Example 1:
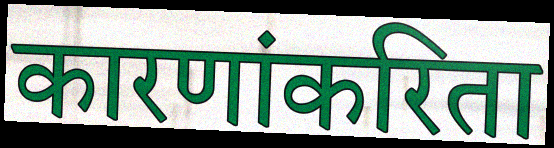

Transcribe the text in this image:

कारणांकरिता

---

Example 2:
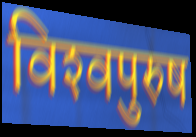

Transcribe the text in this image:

विश्वपुरुष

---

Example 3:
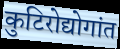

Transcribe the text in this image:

कुटिरोद्योगांत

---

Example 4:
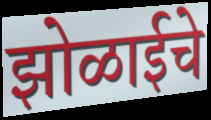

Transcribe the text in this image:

झोळाईचे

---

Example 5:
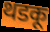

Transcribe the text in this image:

थडकू